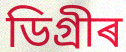
ডিগ্ৰীৰ